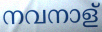
നവനാള്